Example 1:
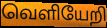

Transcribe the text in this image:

வெளியேறி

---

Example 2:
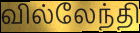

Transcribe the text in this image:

வில்லேந்தி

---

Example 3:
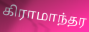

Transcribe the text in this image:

கிராமாந்தர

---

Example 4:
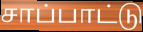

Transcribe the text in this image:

சாப்பாட்டு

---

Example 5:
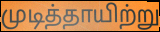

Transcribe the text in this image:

முடித்தாயிற்று